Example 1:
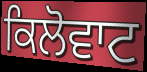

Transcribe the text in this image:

ਕਿਲੋਵਾਟ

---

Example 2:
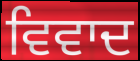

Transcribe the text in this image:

ਵਿਵਾਦ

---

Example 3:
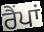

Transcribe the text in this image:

ਰੈਂਪਾਂ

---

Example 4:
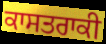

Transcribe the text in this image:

ਕਾਸਤਰਾਕੀ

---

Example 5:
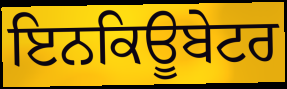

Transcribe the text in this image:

ਇਨਕਿਊਬੇਟਰ